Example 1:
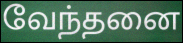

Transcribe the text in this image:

வேந்தனை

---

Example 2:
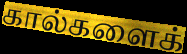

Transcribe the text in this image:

கால்களைக்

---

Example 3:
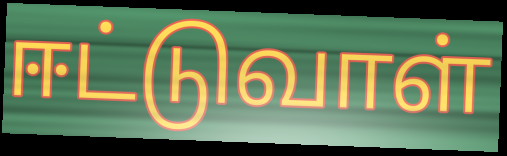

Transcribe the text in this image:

ஈட்டுவாள்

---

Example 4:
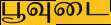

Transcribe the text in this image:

பூவுடை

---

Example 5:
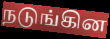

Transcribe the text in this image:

நடுங்கின